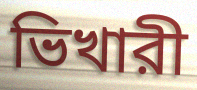
ভিখারী